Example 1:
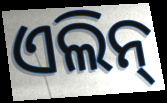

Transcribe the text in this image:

ଏଲିନ୍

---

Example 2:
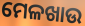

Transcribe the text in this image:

ମେଳଖାଉ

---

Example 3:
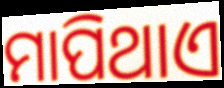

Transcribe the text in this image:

ମାପିଥାଏ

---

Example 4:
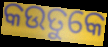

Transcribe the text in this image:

କଉତୁକେ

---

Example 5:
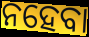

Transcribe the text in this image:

ନହେବା